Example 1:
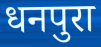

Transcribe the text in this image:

धनपुरा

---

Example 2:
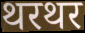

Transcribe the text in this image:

थरथर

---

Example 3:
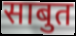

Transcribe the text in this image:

साबुत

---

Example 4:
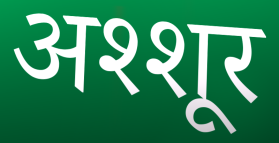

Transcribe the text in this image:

अश्शूर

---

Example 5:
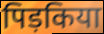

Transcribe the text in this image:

पिड़किया